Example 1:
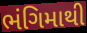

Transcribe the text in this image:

ભંગિમાથી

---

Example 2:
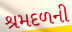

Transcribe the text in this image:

શ્રમદળની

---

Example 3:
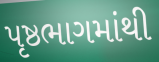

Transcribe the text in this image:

પૃષ્ઠભાગમાંથી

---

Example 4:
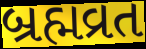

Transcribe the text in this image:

બ્રહ્મવ્રત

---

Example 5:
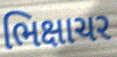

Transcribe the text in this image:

ભિક્ષાચર